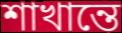
শাখান্তে